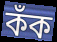
কঁক